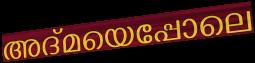
അദ്മയെപ്പോലെ